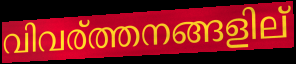
വിവര്ത്തനങ്ങളില്